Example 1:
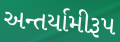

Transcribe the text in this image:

અન્તર્યામીરૂપ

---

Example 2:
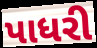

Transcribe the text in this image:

પાધરી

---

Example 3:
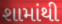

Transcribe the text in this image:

શામાંથી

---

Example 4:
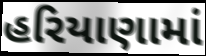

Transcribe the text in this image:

હરિયાણામાં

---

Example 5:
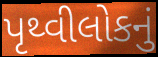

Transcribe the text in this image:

પૃથ્વીલોકનું